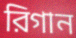
রিগান